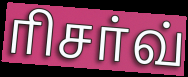
ரிசர்வ்